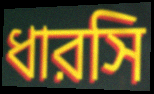
ধারসি